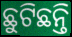
ଛୁଟିଛନ୍ତି